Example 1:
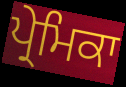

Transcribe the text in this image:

ਪ੍ਰੇਮਿਕਾ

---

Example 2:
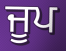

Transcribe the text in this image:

ਜੂਪ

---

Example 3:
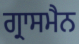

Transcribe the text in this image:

ਗ੍ਰਾਸਮੈਨ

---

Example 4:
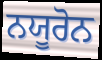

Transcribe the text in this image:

ਨਯੂਰੋਨ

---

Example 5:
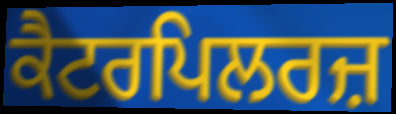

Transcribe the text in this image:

ਕੈਟਰਪਿਲਰਜ਼